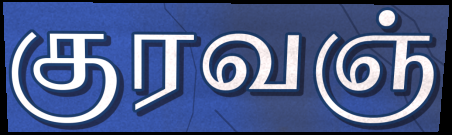
குரவஞ்